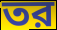
তর